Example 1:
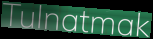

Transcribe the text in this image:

Tulnatmak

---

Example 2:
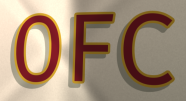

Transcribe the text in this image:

OFC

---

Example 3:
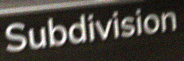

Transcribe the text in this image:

Subdivision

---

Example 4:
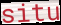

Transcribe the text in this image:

situ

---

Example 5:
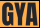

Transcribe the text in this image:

GYA